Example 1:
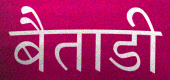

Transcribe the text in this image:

बैताडी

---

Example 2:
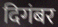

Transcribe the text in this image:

दिगंबर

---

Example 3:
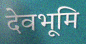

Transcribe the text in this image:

देवभूमि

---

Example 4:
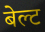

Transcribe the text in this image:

बेल्ट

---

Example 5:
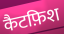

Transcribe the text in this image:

कैटफ़िश